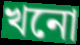
খনো